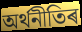
অৰ্থনীতিৰ